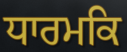
ਧਾਰਮਕਿ